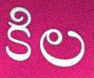
కిల